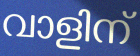
വാളിന്